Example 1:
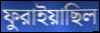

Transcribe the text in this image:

ফুরাইয়াছিল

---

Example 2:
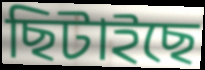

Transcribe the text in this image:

ছিটাইছে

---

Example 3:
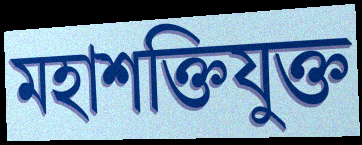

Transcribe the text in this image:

মহাশক্তিযুক্ত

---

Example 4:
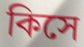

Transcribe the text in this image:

কিসে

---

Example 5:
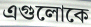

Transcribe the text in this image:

এগুলোকে